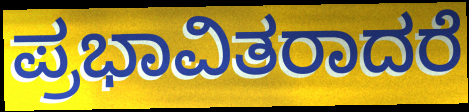
ಪ್ರಭಾವಿತರಾದರೆ